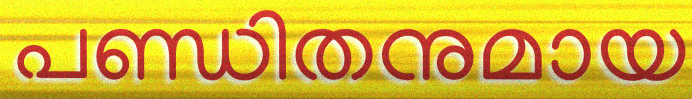
പണ്ഡിതനുമായ